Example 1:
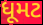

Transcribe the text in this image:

ધૂમટ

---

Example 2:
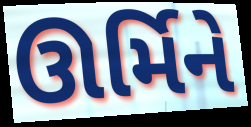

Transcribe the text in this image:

ઊર્મિને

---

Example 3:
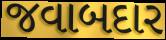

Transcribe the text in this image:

જવાબદાર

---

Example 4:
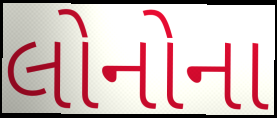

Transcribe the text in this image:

લોનોના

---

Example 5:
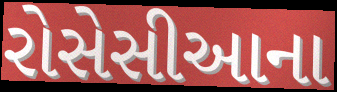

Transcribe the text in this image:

રોસેસીઆના